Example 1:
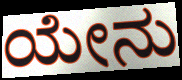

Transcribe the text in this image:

ಯೇನು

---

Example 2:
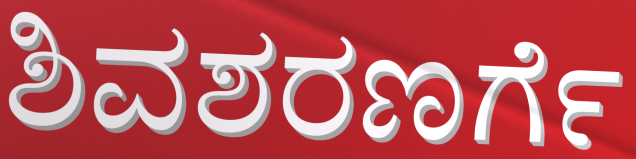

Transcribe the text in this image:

ಶಿವಶರಣರ್ಗೆ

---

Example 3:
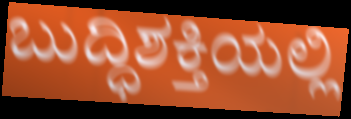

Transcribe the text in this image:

ಬುದ್ಧಿಶಕ್ತಿಯಲ್ಲಿ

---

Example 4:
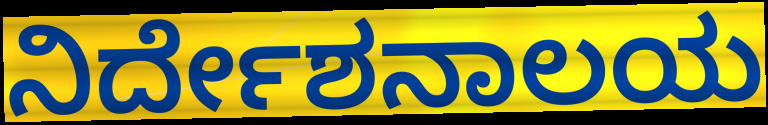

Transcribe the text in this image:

ನಿರ್ದೇಶನಾಲಯ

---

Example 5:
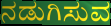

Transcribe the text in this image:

ನಡುಗಿಸುವ